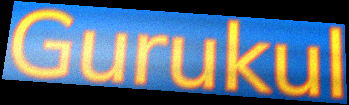
Gurukul